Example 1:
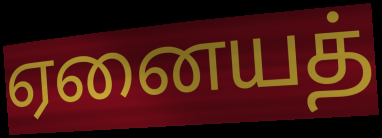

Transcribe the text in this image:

ஏனையத்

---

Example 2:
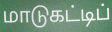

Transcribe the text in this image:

மாடுகட்டிப்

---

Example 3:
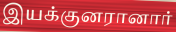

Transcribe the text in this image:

இயக்குனரானார்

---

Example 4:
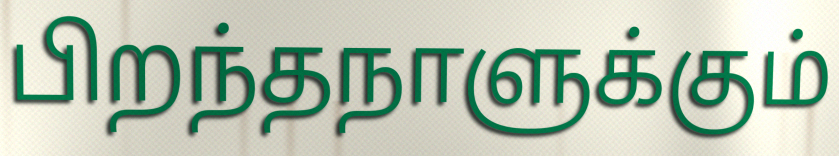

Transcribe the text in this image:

பிறந்தநாளுக்கும்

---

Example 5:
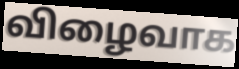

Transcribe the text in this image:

விழைவாக